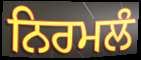
ਨਿਰਮਲੰ